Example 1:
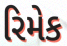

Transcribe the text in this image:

રિમેક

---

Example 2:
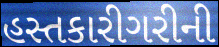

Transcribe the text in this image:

હસ્તકારીગરીની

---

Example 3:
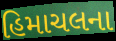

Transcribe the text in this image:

હિમાચલના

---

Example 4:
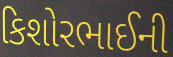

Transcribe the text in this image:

કિશોરભાઈની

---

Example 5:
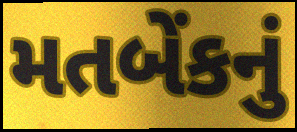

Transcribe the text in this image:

મતબેંકનું